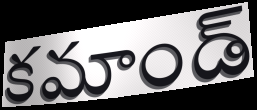
కమాండ్